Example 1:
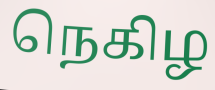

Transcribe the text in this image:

நெகிழ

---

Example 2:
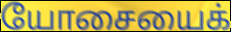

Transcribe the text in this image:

யோசையைக்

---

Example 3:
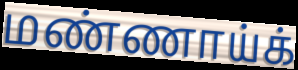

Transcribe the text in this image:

மண்ணாய்க்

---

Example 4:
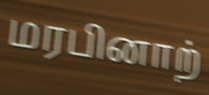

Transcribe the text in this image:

மரபினாற்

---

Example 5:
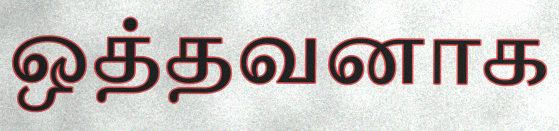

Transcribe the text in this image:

ஒத்தவனாக